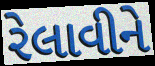
રેલાવીને